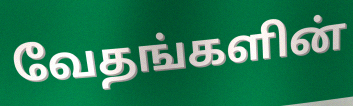
வேதங்களின்